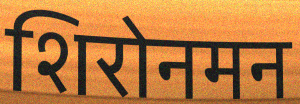
शिरोनमन